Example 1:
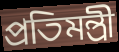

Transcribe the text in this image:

প্রতিমন্ত্রী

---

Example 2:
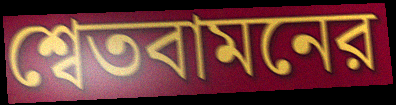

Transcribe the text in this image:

শ্বেতবামনের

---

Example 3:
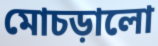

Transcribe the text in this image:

মোচড়ালো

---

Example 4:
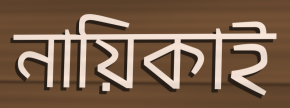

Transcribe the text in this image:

নায়িকাই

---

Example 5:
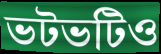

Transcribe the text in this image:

ভটভটিও